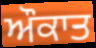
ਔਕਾਤ